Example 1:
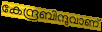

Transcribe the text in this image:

കേന്ദ്രബിന്ദുവാണ്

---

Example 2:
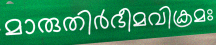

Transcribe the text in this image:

മാരുതിർഭീമവിക്രമഃ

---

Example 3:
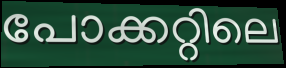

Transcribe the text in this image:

പോക്കറ്റിലെ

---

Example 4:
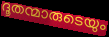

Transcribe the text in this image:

ദൂതന്മാരുടെയും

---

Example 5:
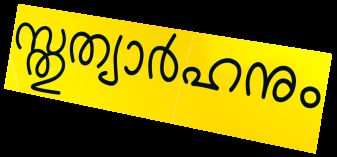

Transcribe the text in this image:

സ്തുത്യാർഹനും